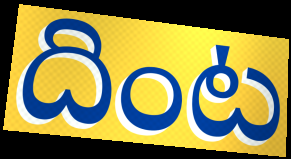
దింట